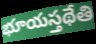
భూయస్తథేతి